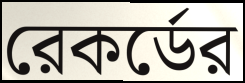
রেকর্ডের